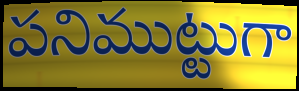
పనిముట్టుగా